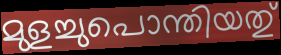
മുളച്ചുപൊന്തിയതു്